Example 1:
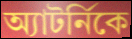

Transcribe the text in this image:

অ্যাটর্নিকে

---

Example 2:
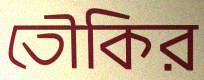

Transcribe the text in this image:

তৌকির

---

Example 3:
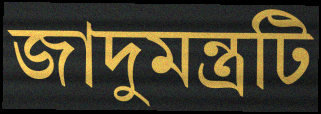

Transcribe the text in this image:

জাদুমন্ত্রটি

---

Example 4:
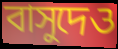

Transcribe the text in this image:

বাসুদেও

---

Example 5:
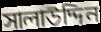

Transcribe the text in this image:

সালাউদ্দিন